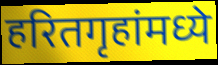
हरितगृहांमध्ये